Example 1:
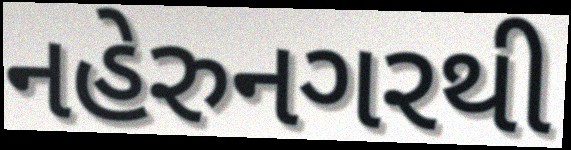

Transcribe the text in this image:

નહેરુનગરથી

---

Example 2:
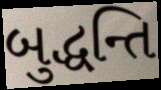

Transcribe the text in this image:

બુદ્ધન્તિ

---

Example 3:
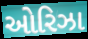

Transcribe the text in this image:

ઓરિઝા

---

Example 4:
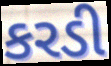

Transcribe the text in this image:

કરડી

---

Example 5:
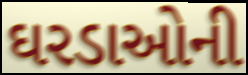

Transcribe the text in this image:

ઘરડાઓની